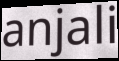
anjali